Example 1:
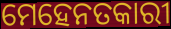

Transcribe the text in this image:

ମେହେନତକାରୀ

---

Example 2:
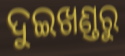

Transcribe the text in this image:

ଦୁଇଖଣ୍ଡରୁ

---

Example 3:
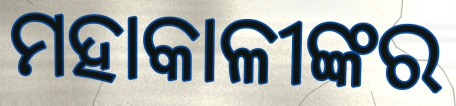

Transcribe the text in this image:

ମହାକାଳୀଙ୍କର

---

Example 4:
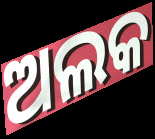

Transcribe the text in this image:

ଅଲକ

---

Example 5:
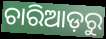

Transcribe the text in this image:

ଚାରିଆଡ଼ରୁ